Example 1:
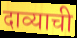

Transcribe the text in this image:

दाव्याची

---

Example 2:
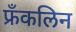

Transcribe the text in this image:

फ्रॅंकलिन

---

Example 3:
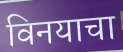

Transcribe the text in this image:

विनयाचा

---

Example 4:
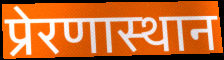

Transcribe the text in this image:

प्रेरणास्थान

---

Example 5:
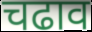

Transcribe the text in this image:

चढाव